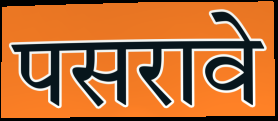
पसरावे